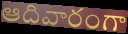
ఆదివారంగా